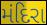
મંદિરા